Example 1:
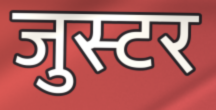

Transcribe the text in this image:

जुस्टर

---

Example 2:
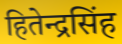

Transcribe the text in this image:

हितेन्द्रसिंह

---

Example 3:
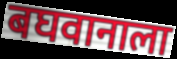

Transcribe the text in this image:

बघवानाला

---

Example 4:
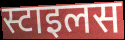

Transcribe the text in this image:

स्टाइलस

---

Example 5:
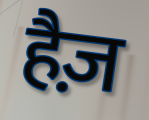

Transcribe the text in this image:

हैज़